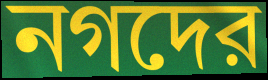
নগদের